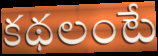
కథలంటే